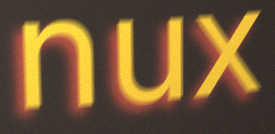
nux